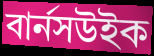
বার্নসউইক